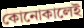
কোনোকালেই